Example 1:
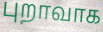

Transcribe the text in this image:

புறாவாக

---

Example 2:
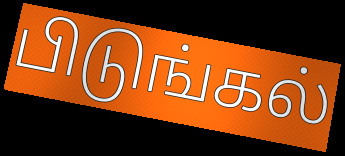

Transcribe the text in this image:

பிடுங்கல்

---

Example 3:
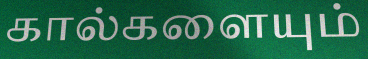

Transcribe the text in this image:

கால்களையும்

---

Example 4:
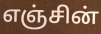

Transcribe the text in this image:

எஞ்சின்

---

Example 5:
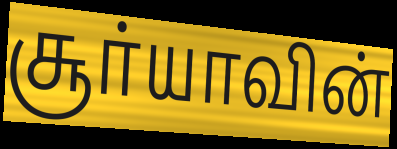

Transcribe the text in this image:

சூர்யாவின்